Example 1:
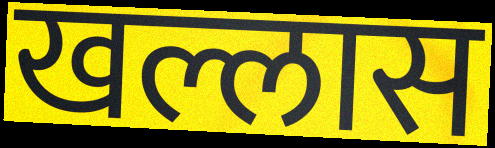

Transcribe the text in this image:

खल्लास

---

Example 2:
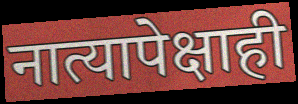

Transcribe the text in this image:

नात्यापेक्षाही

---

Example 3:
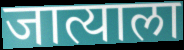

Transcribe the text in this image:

जात्याला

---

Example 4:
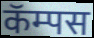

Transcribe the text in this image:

कॅम्पस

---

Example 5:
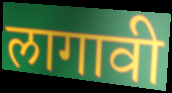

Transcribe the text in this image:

लागावी